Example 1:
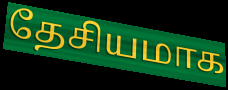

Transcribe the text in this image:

தேசியமாக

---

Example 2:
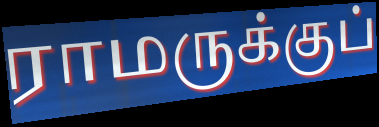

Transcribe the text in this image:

ராமருக்குப்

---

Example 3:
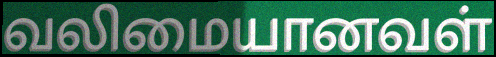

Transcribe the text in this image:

வலிமையானவள்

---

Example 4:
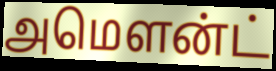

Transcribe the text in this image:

அமௌன்ட்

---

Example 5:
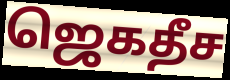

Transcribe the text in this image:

ஜெகதீச